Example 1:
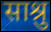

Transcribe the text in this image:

साश्रु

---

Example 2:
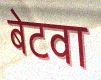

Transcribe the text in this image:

बेटवा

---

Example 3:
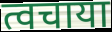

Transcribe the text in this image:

त्वचाया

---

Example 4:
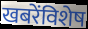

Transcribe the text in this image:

खबरेंविशेष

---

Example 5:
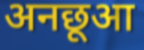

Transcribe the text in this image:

अनछूआ